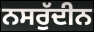
ਨਸਰੁੱਦੀਨ